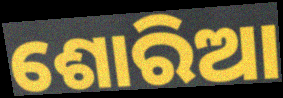
ଶୋରିଆ